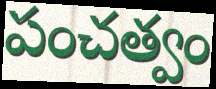
పంచత్వం